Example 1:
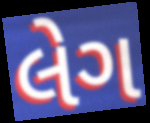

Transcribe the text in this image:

લેગ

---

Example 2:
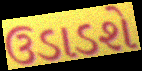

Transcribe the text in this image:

ઉડાડશે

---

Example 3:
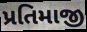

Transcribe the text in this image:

પ્રતિમાજી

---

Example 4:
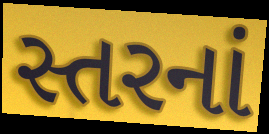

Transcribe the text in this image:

સ્તરનાં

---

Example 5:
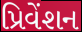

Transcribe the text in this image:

પ્રિવેંશન